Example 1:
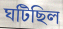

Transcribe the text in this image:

ঘটিছিল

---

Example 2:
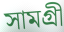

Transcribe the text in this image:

সামগ্ৰী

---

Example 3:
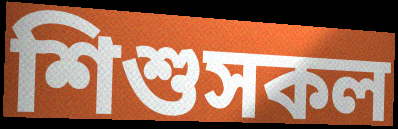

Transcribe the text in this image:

শিশুসকল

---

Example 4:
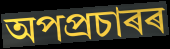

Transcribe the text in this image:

অপপ্ৰচাৰৰ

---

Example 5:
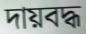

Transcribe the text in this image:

দায়বদ্ধ